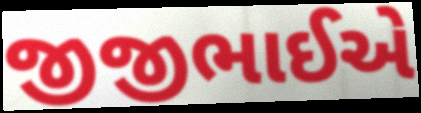
જીજીભાઈએ